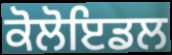
ਕੋਲੋਇਡਲ